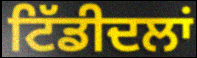
ਟਿੱਡੀਦਲਾਂ